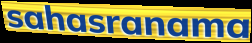
sahasranama